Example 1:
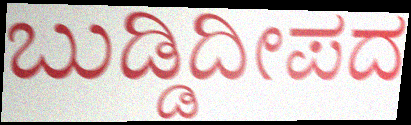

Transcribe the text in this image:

ಬುಡ್ಡಿದೀಪದ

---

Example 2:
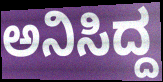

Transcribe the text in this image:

ಅನಿಸಿದ್ದ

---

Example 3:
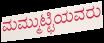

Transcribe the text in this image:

ಮಮ್ಮುಟ್ಟಿಯವರು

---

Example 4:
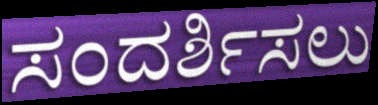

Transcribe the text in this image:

ಸಂದರ್ಶಿಸಲು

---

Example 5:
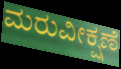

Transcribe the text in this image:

ಮರುವೀಕ್ಷಣೆ